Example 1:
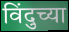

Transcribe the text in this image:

विंदुच्या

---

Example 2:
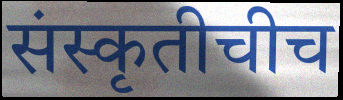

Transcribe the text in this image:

संस्कृतीचीच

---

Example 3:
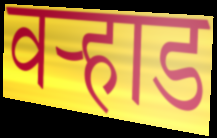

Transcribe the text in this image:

वऱ्हाड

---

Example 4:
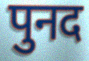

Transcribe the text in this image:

पुनद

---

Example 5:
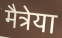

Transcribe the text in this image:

मैत्रेया